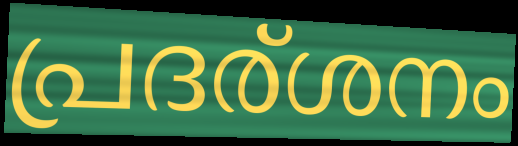
പ്രദര്ശനം